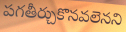
పగతీర్చుకొనవలెనని